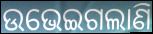
ଉଭେଇଗଲାଣି